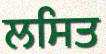
ਲਸਿਤ